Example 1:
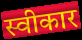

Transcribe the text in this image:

स्‍वीकार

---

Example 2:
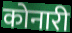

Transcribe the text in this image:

कोनारी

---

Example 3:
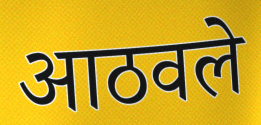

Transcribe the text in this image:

आठवले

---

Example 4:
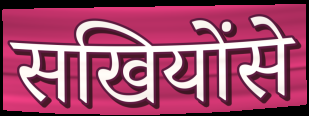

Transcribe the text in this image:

सखियोंसे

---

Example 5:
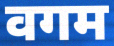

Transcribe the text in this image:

वगम